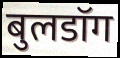
बुलडॉग